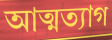
আত্মত্যাগ